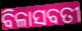
ବିଳାସବତୀ